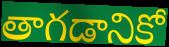
తాగడానికో